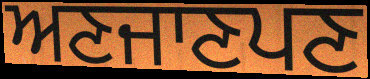
ਅਣਜਾਣਪਣ